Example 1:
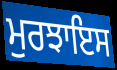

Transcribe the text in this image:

ਮੁਰਝਾਇਸ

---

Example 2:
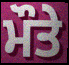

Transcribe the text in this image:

ਮੌਤੇ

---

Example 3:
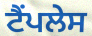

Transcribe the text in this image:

ਟੈਂਪਲੇਸ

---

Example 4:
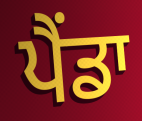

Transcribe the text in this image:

ਪੈਂਡਾ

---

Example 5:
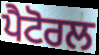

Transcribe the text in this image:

ਪੈਟੋਰਲ